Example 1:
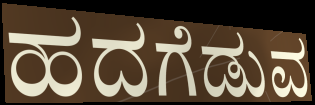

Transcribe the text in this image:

ಹದಗೆಡುವ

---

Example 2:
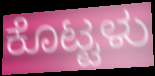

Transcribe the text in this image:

ಕೊಟ್ಟಳು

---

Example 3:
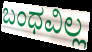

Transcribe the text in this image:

ಬಂಧವಿಲ್ಲ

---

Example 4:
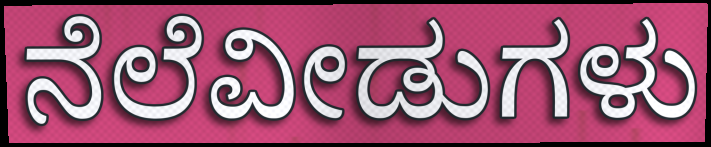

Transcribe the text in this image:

ನೆಲೆವೀಡುಗಳು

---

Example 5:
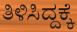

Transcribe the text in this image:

ತಿಳಿಸಿದ್ದಕ್ಕೆ